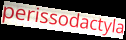
perissodactyla